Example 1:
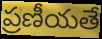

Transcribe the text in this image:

ప్రణీయతే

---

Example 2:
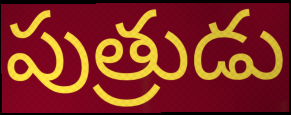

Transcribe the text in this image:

పుత్రుడు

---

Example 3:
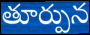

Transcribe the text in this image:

తూర్పున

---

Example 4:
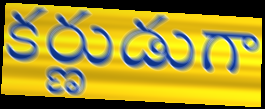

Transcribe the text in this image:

కర్ణుడుగా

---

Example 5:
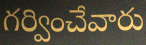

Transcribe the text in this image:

గర్వించేవారు